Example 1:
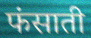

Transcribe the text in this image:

फंसाती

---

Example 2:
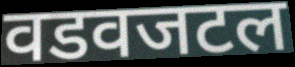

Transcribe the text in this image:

वडवजटल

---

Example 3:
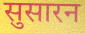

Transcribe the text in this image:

सुसारन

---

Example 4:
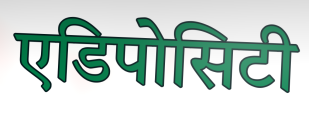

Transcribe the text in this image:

एडिपोसिटी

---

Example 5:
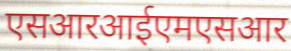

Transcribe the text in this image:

एसआरआईएमएसआर